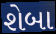
શેબા